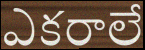
ఎకరాలే